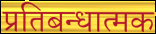
प्रतिबन्धात्मक